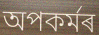
অপকৰ্মৰ